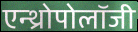
एन्थ्रोपोलॉजी